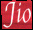
Jio